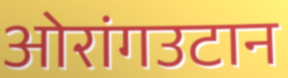
ओरांगउटान